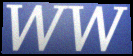
WW